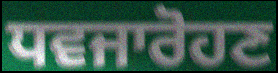
ਧਵਜਾਰੋਹਣ